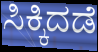
ಸಿಕ್ಕಿದಡೆ